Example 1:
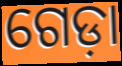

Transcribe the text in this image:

ଗେଡ଼ା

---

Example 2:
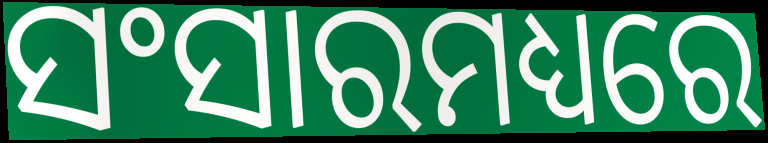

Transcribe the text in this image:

ସଂସାରମଧ୍ୟରେ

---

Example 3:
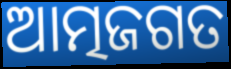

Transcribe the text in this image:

ଆତ୍ମଜଗତ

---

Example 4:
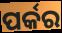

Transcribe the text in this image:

ପର୍କର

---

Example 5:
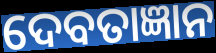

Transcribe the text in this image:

ଦେବତାଜ୍ଞାନ